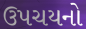
ઉપચયનો